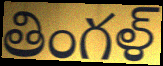
తింగళ్